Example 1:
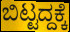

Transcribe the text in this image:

ಬಿಟ್ಟದ್ದಕ್ಕೆ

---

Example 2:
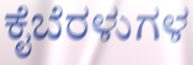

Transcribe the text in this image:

ಕೈಬೆರಳುಗಳ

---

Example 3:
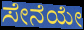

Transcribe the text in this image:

ಸೇನೆಯೇ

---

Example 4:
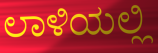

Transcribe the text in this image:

ಲಾಳಿಯಲ್ಲಿ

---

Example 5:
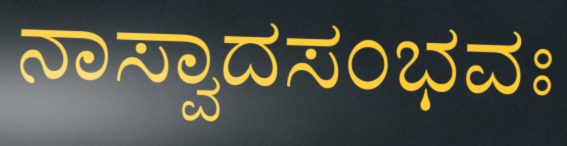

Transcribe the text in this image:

ನಾಸ್ವಾದಸಂಭವಃ